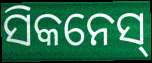
ସିକନେସ୍